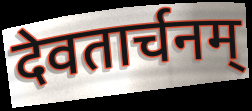
देवतार्चनम्